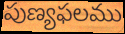
పుణ్యఫలము